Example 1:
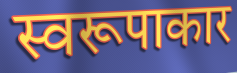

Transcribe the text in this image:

स्वरूपाकार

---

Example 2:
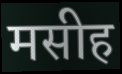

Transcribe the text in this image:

मसीह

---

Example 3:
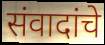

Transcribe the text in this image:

संवादांचे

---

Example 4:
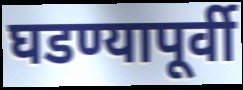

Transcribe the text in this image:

घडण्यापूर्वी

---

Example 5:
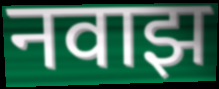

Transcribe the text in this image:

नवाझ